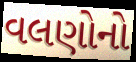
વલણોનો